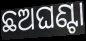
ଛଅଘଣ୍ଟା